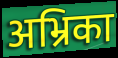
अभ्रिका